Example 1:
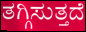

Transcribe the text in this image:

ತಗ್ಗಿಸುತ್ತದೆ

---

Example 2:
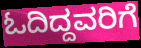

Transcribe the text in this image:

ಓದಿದ್ದವರಿಗೆ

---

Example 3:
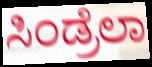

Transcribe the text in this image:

ಸಿಂಡ್ರೆಲಾ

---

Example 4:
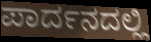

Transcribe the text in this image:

ಪಾರ್ದನದಲ್ಲಿ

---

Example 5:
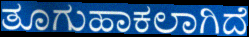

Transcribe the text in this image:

ತೂಗುಹಾಕಲಾಗಿದೆ